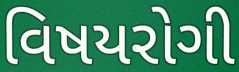
વિષયરોગી